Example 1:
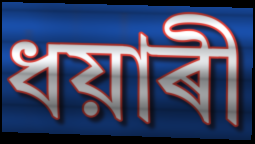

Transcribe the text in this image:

ধয়াৰী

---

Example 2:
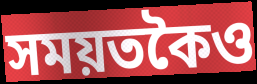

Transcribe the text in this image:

সময়তকৈও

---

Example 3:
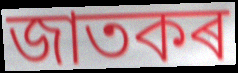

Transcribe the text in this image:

জাতকৰ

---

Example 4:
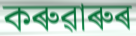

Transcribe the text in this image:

কৰুৱাৰুৰ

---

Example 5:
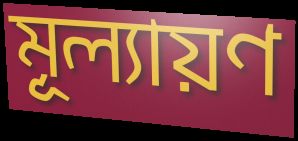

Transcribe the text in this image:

মূল্যায়ণ